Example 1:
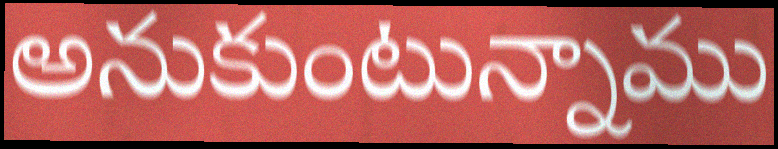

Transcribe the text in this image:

అనుకుంటున్నాము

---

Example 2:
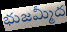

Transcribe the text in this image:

భుజమ్మీద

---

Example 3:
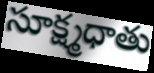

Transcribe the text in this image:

సూక్ష్మధాతు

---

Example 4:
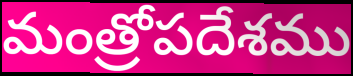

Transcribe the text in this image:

మంత్రోపదేశము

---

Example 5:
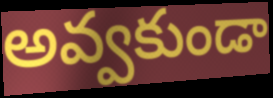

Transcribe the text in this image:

అవ్వకుండా